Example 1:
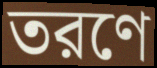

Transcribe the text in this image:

তরণে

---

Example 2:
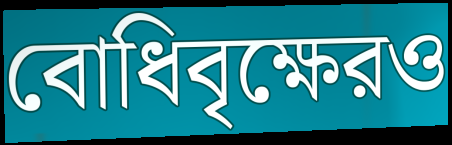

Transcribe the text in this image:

বোধিবৃক্ষেরও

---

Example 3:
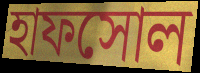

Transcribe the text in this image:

হাফসোল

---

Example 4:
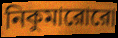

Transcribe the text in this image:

নিকুমারোরো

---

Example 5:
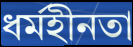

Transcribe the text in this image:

ধর্মহীনতা